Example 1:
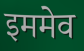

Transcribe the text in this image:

इममेव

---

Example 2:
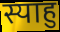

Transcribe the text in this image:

स्याहु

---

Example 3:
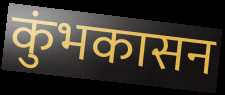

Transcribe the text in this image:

कुंभकासन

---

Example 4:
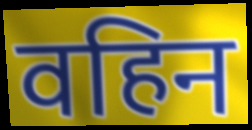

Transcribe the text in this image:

वहिन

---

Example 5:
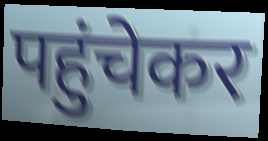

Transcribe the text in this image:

पहुंचेकर